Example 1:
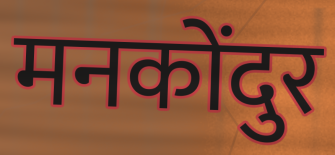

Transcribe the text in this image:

मनकोंदुर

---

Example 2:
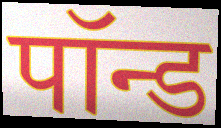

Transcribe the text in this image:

पॉन्ड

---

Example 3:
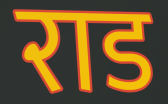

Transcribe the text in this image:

राड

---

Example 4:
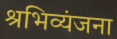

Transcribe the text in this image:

श्रभिव्यंजना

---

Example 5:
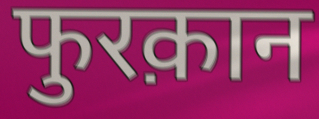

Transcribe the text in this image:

फुरक़ान